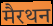
मैरथन